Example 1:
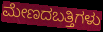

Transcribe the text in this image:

ಮೇಣದಬತ್ತಿಗಳು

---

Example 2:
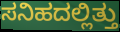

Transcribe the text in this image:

ಸನಿಹದಲ್ಲಿತ್ತು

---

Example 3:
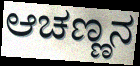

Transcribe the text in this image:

ಆಚಣ್ಣನ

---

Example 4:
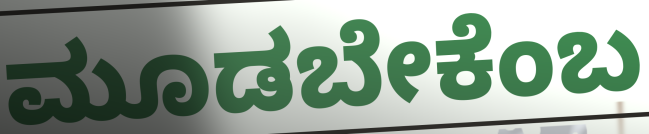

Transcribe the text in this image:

ಮೂಡಬೇಕೆಂಬ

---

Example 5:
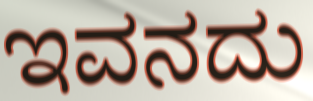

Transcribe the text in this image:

ಇವನದು